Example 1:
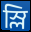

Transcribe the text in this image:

স্লি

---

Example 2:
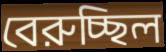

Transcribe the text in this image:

বেরুচ্ছিল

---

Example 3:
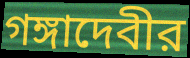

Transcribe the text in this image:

গঙ্গাদেবীর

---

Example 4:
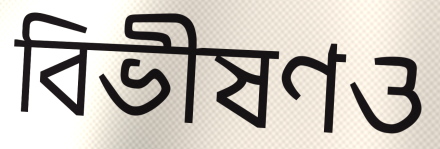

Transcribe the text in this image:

বিভীষণও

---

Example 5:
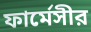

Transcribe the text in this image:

ফার্মেসীর